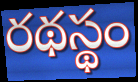
రథస్థం